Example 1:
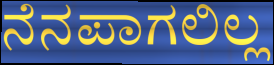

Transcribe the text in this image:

ನೆನಪಾಗಲಿಲ್ಲ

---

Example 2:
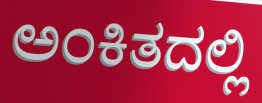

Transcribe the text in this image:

ಅಂಕಿತದಲ್ಲಿ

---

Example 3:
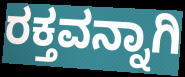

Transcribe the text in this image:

ರಕ್ತವನ್ನಾಗಿ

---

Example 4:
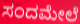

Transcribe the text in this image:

ಸಂದಮೇಲೆ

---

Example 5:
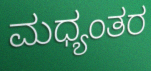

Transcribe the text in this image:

ಮಧ್ಯಂತರ